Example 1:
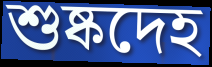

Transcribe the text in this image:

শুষ্কদেহ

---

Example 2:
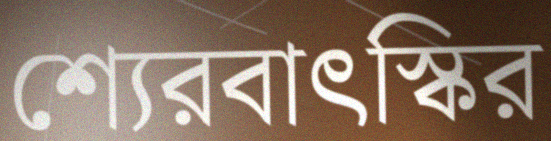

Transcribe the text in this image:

শ্যেরবাৎস্কির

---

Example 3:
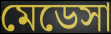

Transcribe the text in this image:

মেডেসা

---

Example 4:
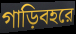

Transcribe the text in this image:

গাড়িবহরে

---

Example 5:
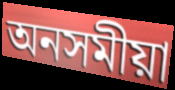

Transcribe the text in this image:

অনসমীয়া